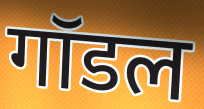
गॉडल